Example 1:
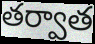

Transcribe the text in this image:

తర్వాత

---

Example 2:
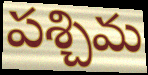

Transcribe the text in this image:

పశ్చిమ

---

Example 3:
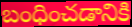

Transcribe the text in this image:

బంధించడానికి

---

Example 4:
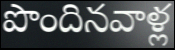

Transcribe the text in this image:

పొందినవాళ్ల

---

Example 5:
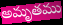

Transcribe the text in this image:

అమృతము